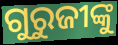
ଗୁରୁଜୀଙ୍କୁ